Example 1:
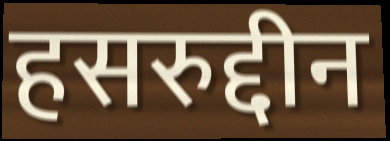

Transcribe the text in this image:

हसरुद्दीन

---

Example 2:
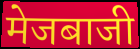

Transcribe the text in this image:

मेजबाजी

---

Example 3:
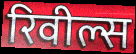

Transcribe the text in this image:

रिवील्स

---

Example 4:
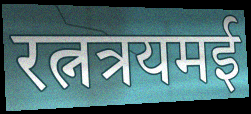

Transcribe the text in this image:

रत्नत्रयमई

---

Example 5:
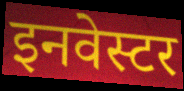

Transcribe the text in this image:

इनवेस्टर